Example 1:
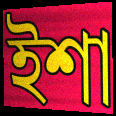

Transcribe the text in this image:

ইশা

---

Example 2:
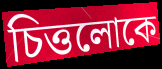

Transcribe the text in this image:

চিত্তলোকে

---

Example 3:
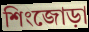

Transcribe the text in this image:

শিংজোড়া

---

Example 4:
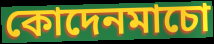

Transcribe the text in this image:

কোদেনমাচো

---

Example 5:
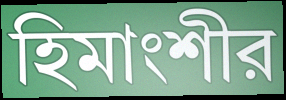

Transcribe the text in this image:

হিমাংশীর